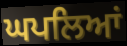
ਘਪਲਿਆਂ